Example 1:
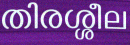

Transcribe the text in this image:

തിരശ്ശീല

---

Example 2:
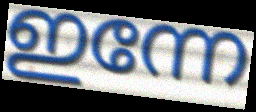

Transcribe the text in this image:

ഇന്നേ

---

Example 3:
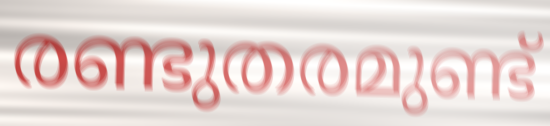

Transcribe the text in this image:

രണ്ടുതരമുണ്ട്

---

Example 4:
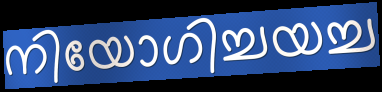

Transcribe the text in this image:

നിയോഗിച്ചയച്ച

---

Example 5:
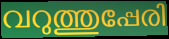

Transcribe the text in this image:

വറുത്തുപ്പേരി